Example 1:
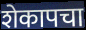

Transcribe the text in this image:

शेकापचा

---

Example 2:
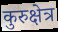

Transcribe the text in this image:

कुरुक्षेत्र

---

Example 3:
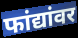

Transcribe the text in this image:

फांद्यांवर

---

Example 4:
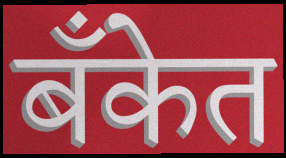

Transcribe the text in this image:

बँकेत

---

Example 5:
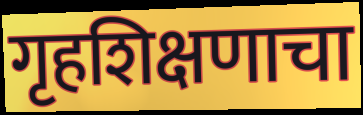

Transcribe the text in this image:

गृहशिक्षणाचा